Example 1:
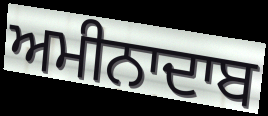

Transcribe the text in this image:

ਅਮੀਨਾਦਾਬ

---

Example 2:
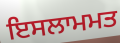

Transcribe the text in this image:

ਇਸਲਾਮਮਤ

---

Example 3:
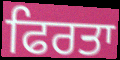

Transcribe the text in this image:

ਫਿਰਤਾ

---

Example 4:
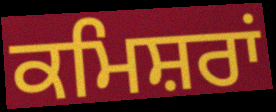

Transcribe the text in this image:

ਕਮਿਸ਼ਰਾਂ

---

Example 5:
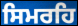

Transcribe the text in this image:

ਸਿਮਰਹਿ